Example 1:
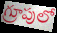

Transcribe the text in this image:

గ్రూపులో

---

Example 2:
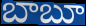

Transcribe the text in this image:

బాబూ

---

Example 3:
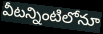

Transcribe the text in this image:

వీటన్నింటిలోనూ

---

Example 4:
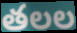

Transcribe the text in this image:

తలల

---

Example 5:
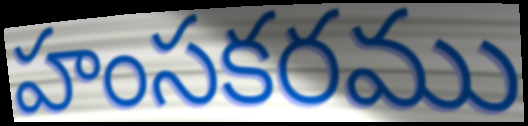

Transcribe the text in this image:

హంసకరము